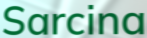
Sarcina